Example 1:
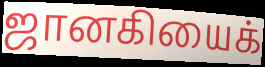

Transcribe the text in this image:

ஜானகியைக்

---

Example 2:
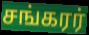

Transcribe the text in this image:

சங்கரர்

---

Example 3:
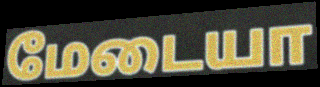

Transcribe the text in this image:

மேடையா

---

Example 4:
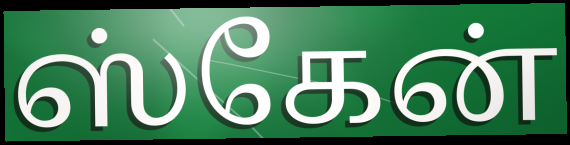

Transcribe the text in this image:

ஸ்கேன்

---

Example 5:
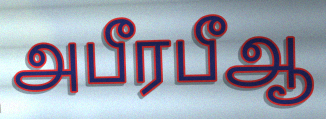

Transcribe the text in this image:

அபீரபீஆ